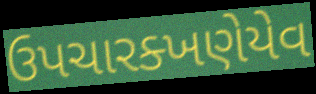
ઉપચારક્ખણેયેવ